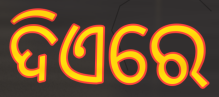
ଦିଏରେ